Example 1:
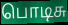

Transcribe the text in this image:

பொடிசு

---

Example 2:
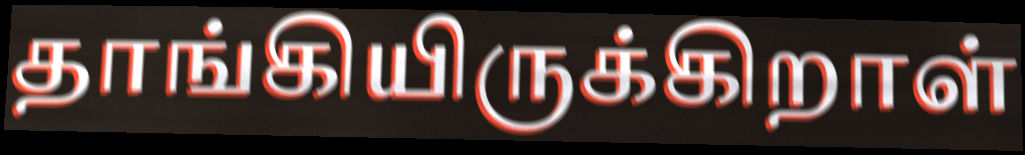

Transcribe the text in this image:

தாங்கியிருக்கிறாள்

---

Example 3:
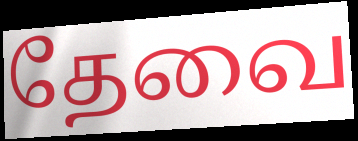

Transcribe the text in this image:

தேவை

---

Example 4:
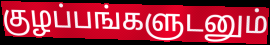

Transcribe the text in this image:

குழப்பங்களுடனும்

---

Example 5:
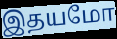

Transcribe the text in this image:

இதயமோ